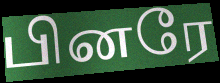
பினரே